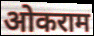
ओकराम